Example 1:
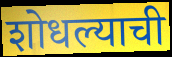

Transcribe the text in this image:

शोधल्याची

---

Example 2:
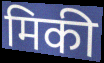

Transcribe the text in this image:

मिकी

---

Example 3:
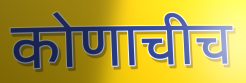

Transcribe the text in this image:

कोणाचीच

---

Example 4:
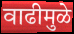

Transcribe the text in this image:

वाढीमुळे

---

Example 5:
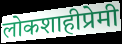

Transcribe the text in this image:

लोकशाहीप्रेमी